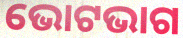
ଭୋଟଭାଗ